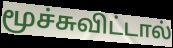
மூச்சுவிட்டால்